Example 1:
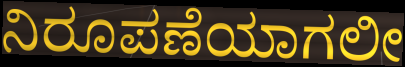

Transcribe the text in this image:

ನಿರೂಪಣೆಯಾಗಲೀ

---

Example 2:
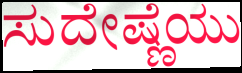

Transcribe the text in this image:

ಸುದೇಷ್ಣೆಯು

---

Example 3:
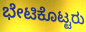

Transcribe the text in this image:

ಭೇಟಿಕೊಟ್ಟರು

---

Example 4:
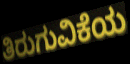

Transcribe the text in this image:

ತಿರುಗುವಿಕೆಯ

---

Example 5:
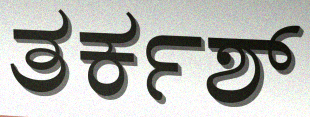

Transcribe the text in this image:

ತರ್ಕಶ್